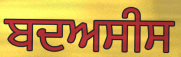
ਬਦਅਸੀਸ